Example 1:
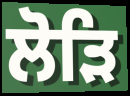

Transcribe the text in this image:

ਲੋੜਿ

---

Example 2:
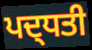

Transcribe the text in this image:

ਪਦ੍ਧਤੀ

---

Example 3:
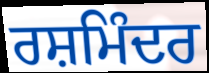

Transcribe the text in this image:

ਰਸ਼ਮਿੰਦਰ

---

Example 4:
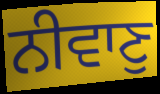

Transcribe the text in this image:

ਨੀਵਾਣੁ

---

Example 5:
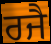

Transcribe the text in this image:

ਰਜੈ